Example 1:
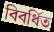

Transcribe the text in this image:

বিবর্ধিত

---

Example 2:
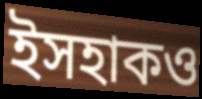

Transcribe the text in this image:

ইসহাকও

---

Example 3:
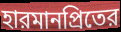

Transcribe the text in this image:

হারমানপ্রিতের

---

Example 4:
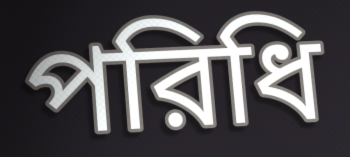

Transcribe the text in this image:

পরিধি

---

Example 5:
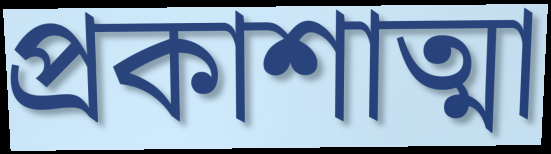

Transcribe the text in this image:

প্রকাশাত্মা